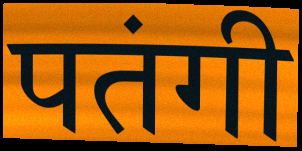
पतंगी